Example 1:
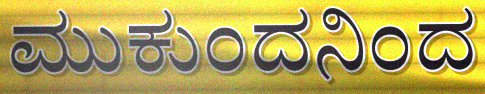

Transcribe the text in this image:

ಮುಕುಂದನಿಂದ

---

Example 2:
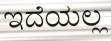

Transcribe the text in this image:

ಇದೆಯಲ್ಲ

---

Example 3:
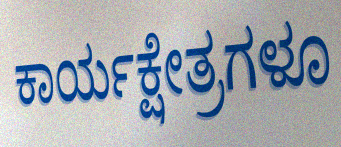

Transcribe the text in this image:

ಕಾರ್ಯಕ್ಷೇತ್ರಗಳೂ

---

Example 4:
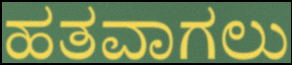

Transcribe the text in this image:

ಹತವಾಗಲು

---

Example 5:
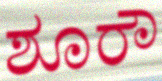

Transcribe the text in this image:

ಶೂರೌ